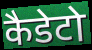
कैडेटो